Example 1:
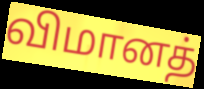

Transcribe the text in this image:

விமானத்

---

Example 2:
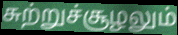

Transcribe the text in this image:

சுற்றுச்சூழலும்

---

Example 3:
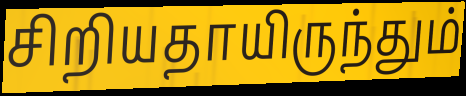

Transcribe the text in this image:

சிறியதாயிருந்தும்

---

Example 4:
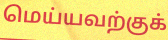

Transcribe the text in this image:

மெய்யவற்குக்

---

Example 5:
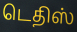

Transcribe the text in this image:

டெதிஸ்